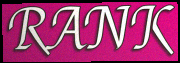
RANK